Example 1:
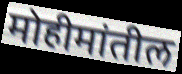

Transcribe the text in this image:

मोहीमांतील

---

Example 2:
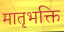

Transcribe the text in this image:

मातृभक्ति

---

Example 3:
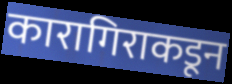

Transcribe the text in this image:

कारागिराकडून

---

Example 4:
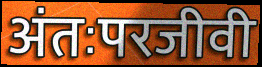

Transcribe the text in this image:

अंतःपरजीवी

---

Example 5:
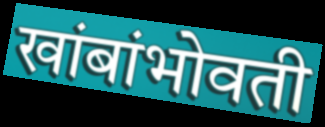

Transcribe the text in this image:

खांबांभोवती